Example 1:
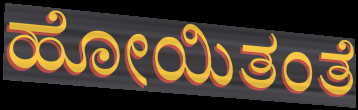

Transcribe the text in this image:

ಹೋಯಿತಂತೆ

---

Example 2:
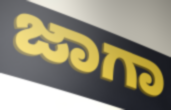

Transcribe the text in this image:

ಜಾಗಾ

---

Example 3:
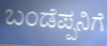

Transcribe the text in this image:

ಬಂಡೆಪ್ಪನಿಗೆ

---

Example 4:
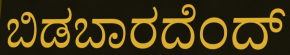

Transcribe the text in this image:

ಬಿಡಬಾರದೆಂದ್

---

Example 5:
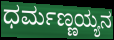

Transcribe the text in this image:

ಧರ್ಮಣ್ಣಯ್ಯನ